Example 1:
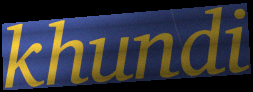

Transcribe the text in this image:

khundi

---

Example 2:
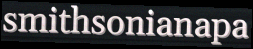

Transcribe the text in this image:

smithsonianapa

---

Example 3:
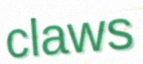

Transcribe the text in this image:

claws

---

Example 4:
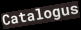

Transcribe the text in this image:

Catalogus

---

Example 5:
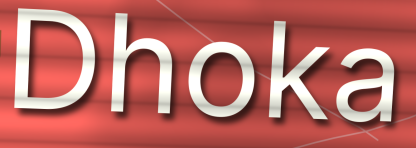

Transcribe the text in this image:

Dhoka